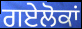
ਗਏਲੋਕਾਂ